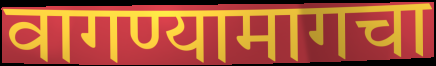
वागण्यामागचा